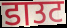
डाउट